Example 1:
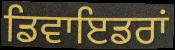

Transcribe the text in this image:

ਡਿਵਾਇਡਰਾਂ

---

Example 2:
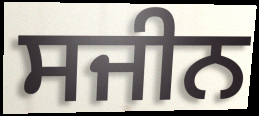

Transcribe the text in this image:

ਸਜੀਨ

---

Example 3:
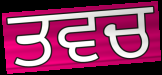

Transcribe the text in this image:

ਤਵਚ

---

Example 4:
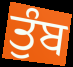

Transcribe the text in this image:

ਤੁੰਬ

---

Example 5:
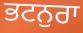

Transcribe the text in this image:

ਭਟਨੁਰਾ